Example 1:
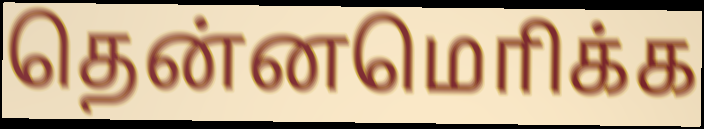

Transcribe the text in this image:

தென்னமெரிக்க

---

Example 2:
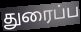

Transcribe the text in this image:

துரைப்ப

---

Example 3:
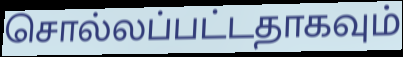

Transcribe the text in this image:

சொல்லப்பட்டதாகவும்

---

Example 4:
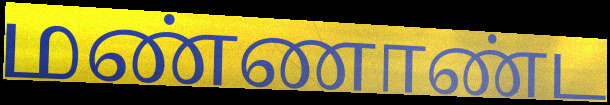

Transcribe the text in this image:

மண்ணாண்ட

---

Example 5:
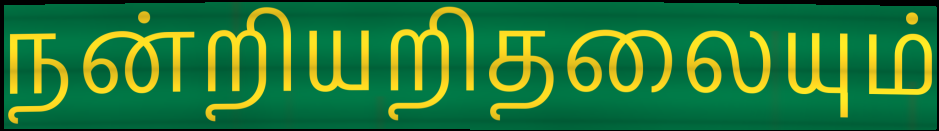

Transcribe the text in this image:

நன்றியறிதலையும்